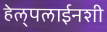
हेल्पलाईनशी